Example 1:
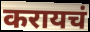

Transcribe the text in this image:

करायचं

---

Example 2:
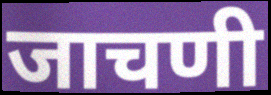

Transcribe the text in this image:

जाचणी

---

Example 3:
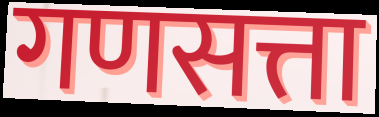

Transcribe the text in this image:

गणसत्ता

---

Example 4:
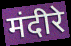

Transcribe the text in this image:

मंदीरे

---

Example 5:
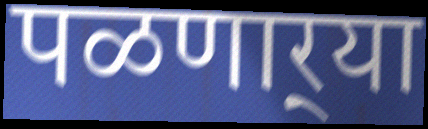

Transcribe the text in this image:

पळणार्या